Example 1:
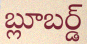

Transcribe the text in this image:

బ్లూబర్డ్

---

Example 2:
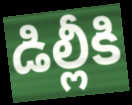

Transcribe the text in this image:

డిల్లీకి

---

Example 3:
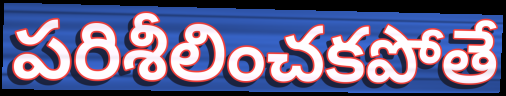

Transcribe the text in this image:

పరిశీలించకపోతే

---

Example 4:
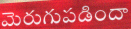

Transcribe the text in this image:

మెరుగుపడిందా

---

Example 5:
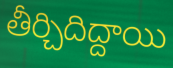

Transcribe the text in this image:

తీర్చిదిద్దాయి